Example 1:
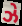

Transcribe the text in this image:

ઝે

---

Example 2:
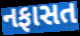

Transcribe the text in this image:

નફાસત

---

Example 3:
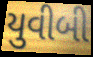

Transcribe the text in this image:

યુવીબી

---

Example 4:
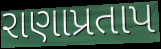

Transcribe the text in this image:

રાણાપ્રતાપ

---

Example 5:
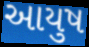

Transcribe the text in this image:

આયુષ